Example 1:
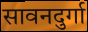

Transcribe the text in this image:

सावनदुर्गा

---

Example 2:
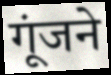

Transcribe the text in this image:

गूंजने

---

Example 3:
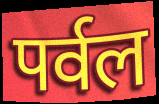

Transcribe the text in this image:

पर्वल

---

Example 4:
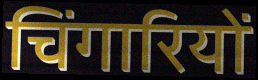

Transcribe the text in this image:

चिंगारियों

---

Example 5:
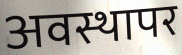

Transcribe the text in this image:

अवस्थापर